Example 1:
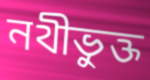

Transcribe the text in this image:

নথীভুক্ত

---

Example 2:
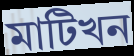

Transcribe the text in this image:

মাটিখন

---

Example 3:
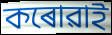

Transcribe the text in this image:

কৰোৱাই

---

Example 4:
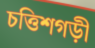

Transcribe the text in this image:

চত্তিশগড়ী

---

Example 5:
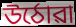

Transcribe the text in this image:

উঠোৱা